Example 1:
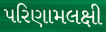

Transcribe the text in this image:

પરિણામલક્ષી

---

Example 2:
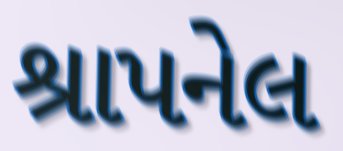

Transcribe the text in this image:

શ્રાપનેલ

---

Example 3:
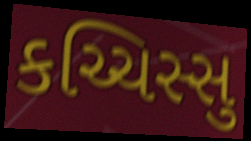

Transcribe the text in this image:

કચ્ચિસ્સુ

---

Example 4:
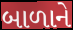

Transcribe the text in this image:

બાળાને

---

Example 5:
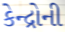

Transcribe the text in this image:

કેન્દ્રોની